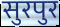
सुरपुर